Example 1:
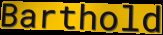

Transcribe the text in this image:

Barthold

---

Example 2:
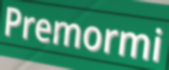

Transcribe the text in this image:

Premormi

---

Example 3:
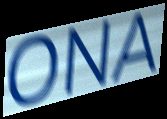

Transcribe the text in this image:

ONA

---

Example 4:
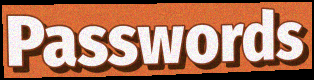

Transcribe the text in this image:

Passwords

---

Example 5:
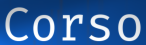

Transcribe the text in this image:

Corso